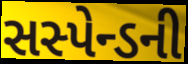
સસ્પેન્ડની